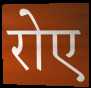
रोए